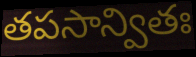
తపసాన్వితః